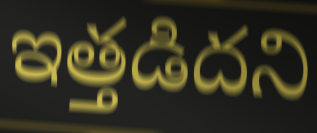
ఇత్తడిదని